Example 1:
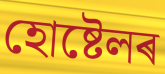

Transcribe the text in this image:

হোষ্টেলৰ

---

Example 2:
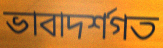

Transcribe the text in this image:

ভাবাদৰ্শগত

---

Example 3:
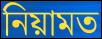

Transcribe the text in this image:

নিয়ামত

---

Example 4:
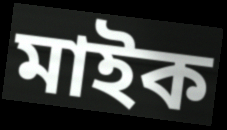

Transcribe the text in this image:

মাইক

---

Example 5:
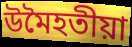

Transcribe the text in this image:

উমৈহতীয়া